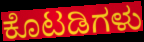
ಕೊಟಡಿಗಳು